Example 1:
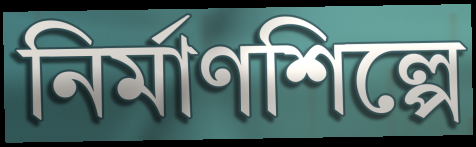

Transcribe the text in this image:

নির্মাণশিল্পে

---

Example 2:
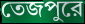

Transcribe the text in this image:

তেজপুরে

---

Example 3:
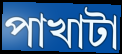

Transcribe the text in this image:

পাখাটা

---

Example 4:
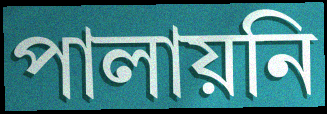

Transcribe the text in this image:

পালায়নি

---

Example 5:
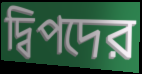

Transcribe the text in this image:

দ্বিপদের